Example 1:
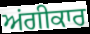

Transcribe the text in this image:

ਅਂਗੀਕਾਰ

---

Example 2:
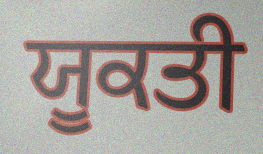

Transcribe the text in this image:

ਯੂਕਤੀ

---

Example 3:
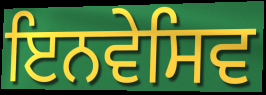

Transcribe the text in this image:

ਇਨਵੇਸਿਵ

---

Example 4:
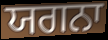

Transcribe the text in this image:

ਯਗਨਾ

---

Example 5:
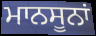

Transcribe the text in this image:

ਮਾਨਸੂਨਾਂ